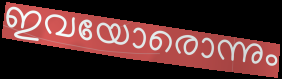
ഇവയോരൊന്നും